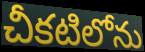
చీకటిలోను